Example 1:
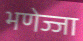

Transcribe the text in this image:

भणेज्जा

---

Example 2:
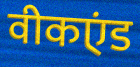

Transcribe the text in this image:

वीकएंड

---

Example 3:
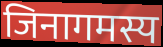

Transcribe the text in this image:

जिनागमस्य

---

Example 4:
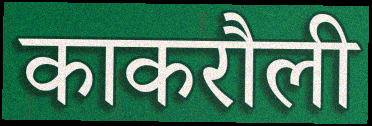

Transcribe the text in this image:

काकरौली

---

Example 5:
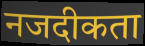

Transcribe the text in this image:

नजदीकता